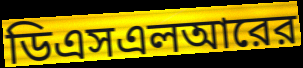
ডিএসএলআরের